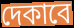
দেকাবে